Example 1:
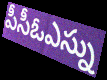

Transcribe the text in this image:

పీసీఓఎస్ను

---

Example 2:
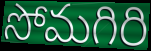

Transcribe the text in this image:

సోమగిరి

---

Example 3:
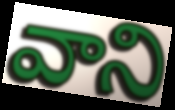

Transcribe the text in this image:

వాని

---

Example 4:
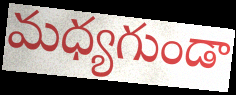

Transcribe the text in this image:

మధ్యగుండా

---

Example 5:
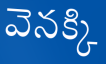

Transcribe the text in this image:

వెనక్కి